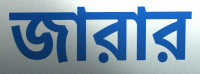
জারার